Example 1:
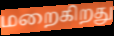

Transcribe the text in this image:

மறைகிறது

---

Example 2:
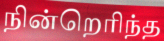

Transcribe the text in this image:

நின்றெரிந்த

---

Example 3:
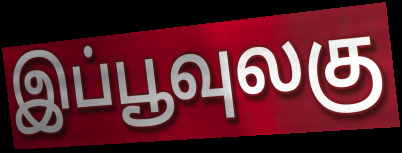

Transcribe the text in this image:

இப்பூவுலகு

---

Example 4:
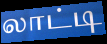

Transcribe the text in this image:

லாட்டி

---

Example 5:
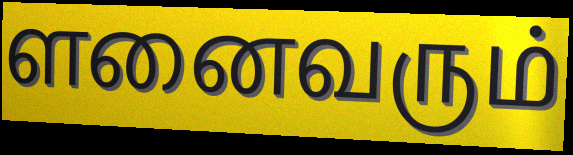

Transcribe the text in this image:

ளனைவரும்